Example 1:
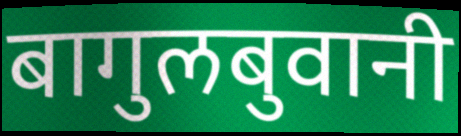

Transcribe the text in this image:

बागुलबुवानी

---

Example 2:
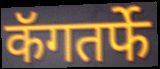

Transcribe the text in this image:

कॅगतर्फे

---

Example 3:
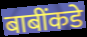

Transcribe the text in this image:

बाबींकडे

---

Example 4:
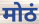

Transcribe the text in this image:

मोठं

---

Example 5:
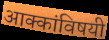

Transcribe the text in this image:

आक्कांविषयी